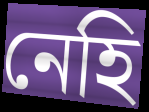
নেহি